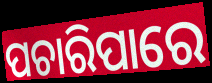
ପଚାରିପାରେ